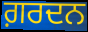
ਗ਼ਰਦਨ